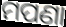
ମପଣା